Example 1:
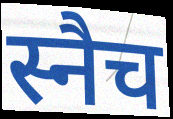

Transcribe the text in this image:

स्नैच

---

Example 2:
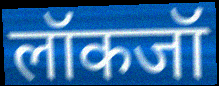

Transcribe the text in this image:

लॉकजॉ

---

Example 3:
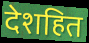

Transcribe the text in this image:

देशहित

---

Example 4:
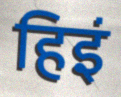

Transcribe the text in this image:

हिइं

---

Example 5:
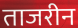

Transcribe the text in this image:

ताजरीन